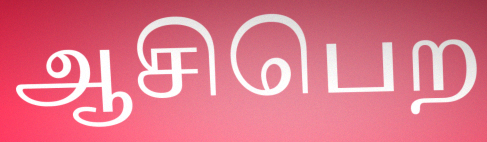
ஆசிபெற